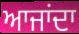
ਆਜਾਂਦਾ